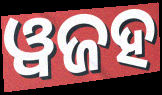
ୱଜହ